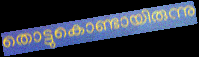
തൊട്ടുകൊണ്ടായിരുന്നു